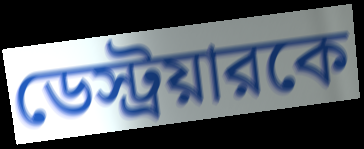
ডেস্ট্রয়ারকে